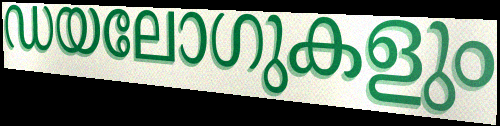
ഡയലോഗുകളും